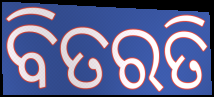
ବିତରତି